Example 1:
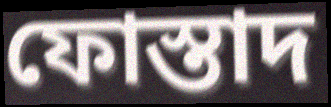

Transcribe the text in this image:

ফোস্তাদ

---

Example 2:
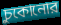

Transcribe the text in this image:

চুকোনোর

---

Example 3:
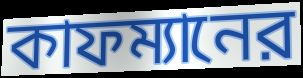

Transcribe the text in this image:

কাফম্যানের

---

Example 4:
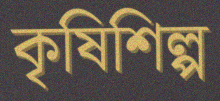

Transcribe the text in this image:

কৃষিশিল্প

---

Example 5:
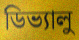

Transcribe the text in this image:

ডিভ্যালু